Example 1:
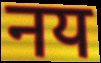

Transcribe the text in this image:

नय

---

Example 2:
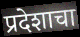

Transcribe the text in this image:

प्रदेशाचा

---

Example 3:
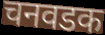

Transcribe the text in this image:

चनवडक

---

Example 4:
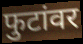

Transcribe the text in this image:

फुटांवर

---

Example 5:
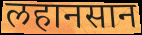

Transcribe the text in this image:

लहानसान